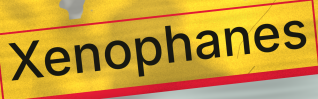
Xenophanes